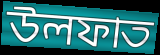
উলফাত